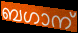
ബഗാന്